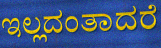
ಇಲ್ಲದಂತಾದರೆ